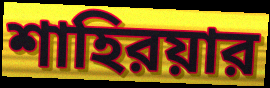
শাহিরয়ার